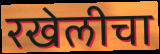
रखेलीचा